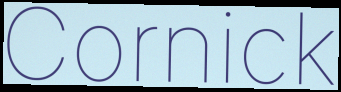
Cornick